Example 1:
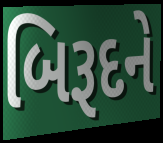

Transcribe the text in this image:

બિરૂદને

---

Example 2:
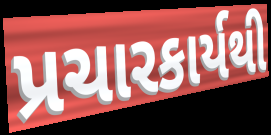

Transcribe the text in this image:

પ્રચારકાર્યથી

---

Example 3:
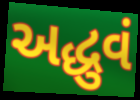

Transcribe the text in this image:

અદ્ધુવં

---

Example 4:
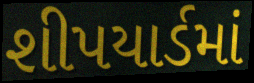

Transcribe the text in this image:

શીપયાર્ડમાં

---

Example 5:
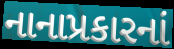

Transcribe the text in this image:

નાનાપ્રકારનાં